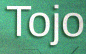
Tojo